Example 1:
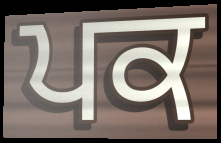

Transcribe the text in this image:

ਪਕ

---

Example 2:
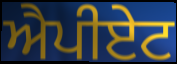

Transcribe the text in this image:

ਐਪੀਏਟ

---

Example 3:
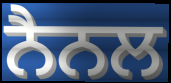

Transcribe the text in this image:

ਨੈਨਲ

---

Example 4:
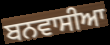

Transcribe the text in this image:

ਬਨਵਾਸੀਆ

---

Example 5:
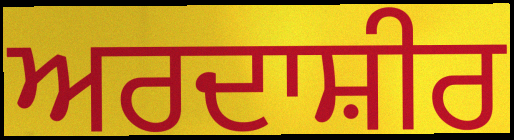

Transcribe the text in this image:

ਅਰਦਾਸ਼ੀਰ